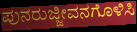
ಪುನರುಜ್ಜೀವನಗೊಳಿಸಿ